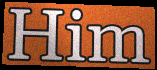
Him